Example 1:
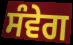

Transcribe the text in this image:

ਸੰਵੇਗ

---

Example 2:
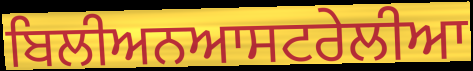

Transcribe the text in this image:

ਬਿਲੀਅਨਆਸਟਰੇਲੀਆ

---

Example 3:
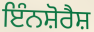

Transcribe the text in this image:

ਇੰਨਸ਼ੋਰੈਸ਼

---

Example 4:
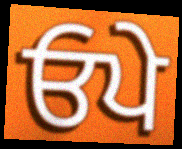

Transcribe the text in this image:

ਓਪੇ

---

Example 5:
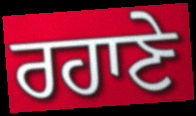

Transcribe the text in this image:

ਰਹਾਣੇ